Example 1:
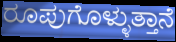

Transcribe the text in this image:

ರೂಪುಗೊಳ್ಳುತ್ತಾನೆ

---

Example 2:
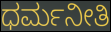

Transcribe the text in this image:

ಧರ್ಮನೀತಿ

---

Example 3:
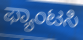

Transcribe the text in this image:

ಫ್ಯಾಂಟಸಿ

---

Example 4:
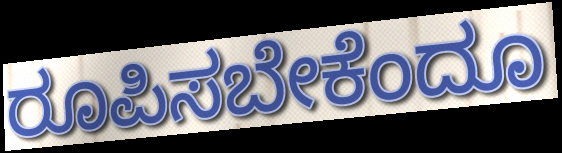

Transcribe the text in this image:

ರೂಪಿಸಬೇಕೆಂದೂ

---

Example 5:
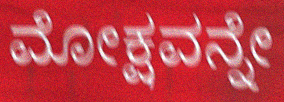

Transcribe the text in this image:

ಮೋಕ್ಷವನ್ನೇ